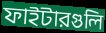
ফাইটারগুলি